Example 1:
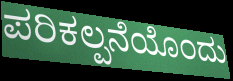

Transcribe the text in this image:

ಪರಿಕಲ್ಪನೆಯೊಂದು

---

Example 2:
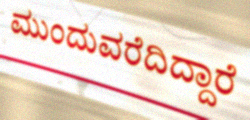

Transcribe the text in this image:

ಮುಂದುವರೆದಿದ್ದಾರೆ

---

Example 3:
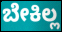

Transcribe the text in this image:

ಬೇಕಿಲ್ಲ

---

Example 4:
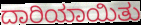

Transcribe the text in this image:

ದಾರಿಯಾಯಿತು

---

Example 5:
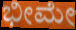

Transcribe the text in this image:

ಭೀಮೇ